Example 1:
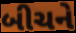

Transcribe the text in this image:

બીચને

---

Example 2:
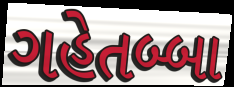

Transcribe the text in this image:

ગહેતબ્બા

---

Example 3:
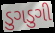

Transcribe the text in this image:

ડુગડુગી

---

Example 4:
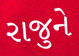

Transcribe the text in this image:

રાજુને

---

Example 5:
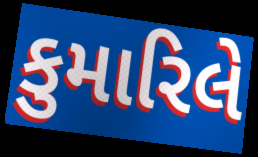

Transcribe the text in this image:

કુમારિલે